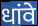
धांवे